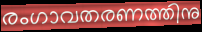
രംഗാവതരണത്തിനു